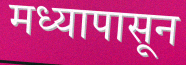
मध्यापासून